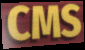
CMS